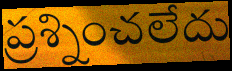
ప్రశ్నించలేదు